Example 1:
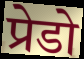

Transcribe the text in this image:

प्रेडो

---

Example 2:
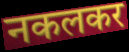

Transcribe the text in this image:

नकलकर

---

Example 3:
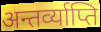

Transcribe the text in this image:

अन्तर्व्याप्ति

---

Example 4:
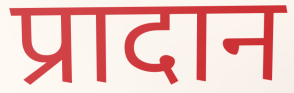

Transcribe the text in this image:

प्रादान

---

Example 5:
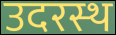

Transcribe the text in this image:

उदरस्थ